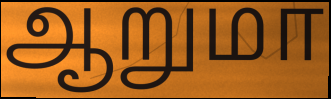
ஆறுமா